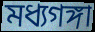
মধ্যগঙ্গা